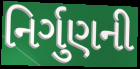
નિર્ગુણની